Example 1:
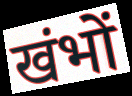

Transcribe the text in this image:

खंभों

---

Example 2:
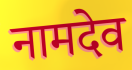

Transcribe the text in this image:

नामदेव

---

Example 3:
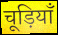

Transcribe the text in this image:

चूड़ियाँ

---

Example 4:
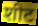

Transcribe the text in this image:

शीट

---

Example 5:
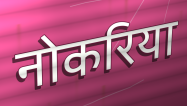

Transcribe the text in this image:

नोकरिया